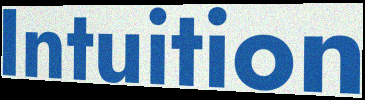
Intuition